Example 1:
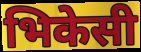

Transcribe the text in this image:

भिकेसी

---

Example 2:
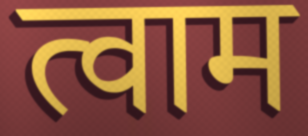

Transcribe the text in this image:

त्वाम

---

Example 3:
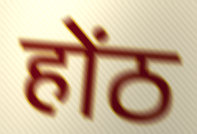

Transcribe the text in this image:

होंठ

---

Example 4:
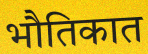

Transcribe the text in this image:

भौतिकात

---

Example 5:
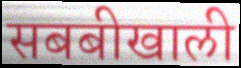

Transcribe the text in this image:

सबबीखाली